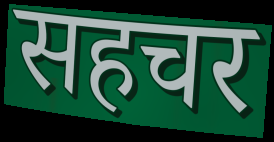
सहचर